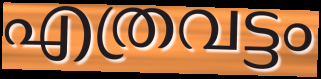
എത്രവട്ടം